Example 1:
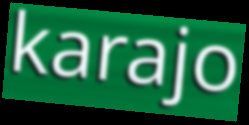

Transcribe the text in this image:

karajo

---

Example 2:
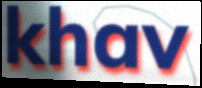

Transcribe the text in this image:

khav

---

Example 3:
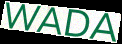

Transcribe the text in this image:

WADA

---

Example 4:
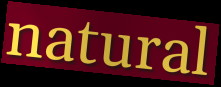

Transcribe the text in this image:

natural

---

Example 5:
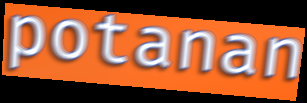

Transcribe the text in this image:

potanan